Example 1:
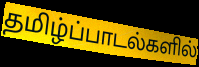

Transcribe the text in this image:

தமிழ்ப்பாடல்களில்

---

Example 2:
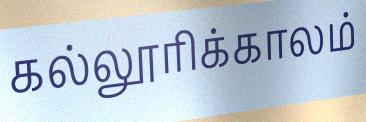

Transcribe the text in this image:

கல்லூரிக்காலம்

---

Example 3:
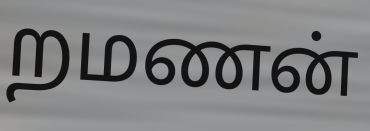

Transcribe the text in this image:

றமணன்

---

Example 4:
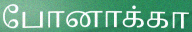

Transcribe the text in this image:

போனாக்கா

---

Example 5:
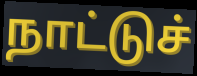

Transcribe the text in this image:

நாட்டுச்